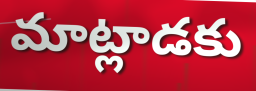
మాట్లాడకు